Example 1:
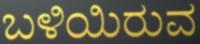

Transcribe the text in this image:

ಬಳಿಯಿರುವ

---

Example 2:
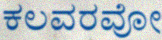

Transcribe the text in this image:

ಕಲವರವೋ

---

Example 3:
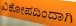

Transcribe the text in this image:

ವಿಕೋಪದಿಂದಾಗಿ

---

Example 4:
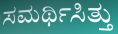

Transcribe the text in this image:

ಸಮರ್ಥಿಸಿತ್ತು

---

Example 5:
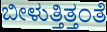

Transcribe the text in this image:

ಬೀಳುತ್ತಿತ್ತಂತೆ